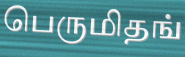
பெருமிதங்